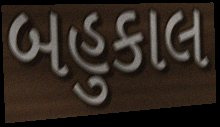
બહુકાલ